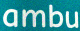
ambu